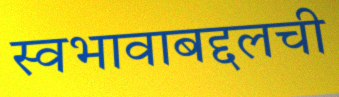
स्वभावाबद्दलची